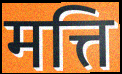
मत्ति